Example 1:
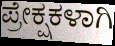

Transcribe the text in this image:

ಪ್ರೇಕ್ಷಕಳಾಗಿ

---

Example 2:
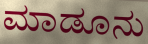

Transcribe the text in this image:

ಮಾಡೂನು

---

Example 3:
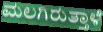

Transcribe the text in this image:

ಮಲಗಿರುತ್ತಾಳೆ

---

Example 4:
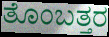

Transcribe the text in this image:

ತೊಂಬತ್ತರ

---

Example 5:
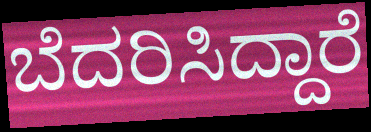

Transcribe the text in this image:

ಬೆದರಿಸಿದ್ದಾರೆ